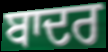
ਬਾਦਰ